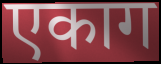
एकाग